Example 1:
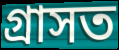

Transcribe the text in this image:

গ্ৰাসত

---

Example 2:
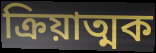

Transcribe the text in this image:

ক্ৰিয়াত্মক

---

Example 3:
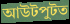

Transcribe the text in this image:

আউটপুটত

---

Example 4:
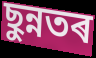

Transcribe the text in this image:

ছুন্নতৰ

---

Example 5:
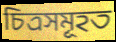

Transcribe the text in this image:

চিত্ৰসমূহত